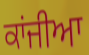
ਕਾਂਜੀਆ